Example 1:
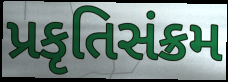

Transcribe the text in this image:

પ્રકૃતિસંક્રમ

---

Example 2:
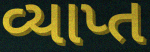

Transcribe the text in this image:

વ્યાપ્ત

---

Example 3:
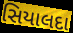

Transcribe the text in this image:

સિયાલદા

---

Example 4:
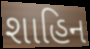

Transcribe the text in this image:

શાહિન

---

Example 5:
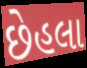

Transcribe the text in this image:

છેહલા